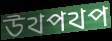
উথপথপ